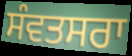
ਸੰਵਤਸਰਾ